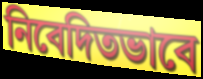
নিবেদিতভাবে